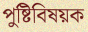
পুষ্টিবিষয়ক